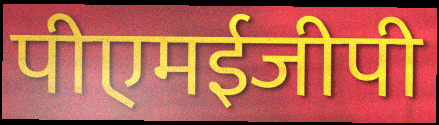
पीएमईजीपी